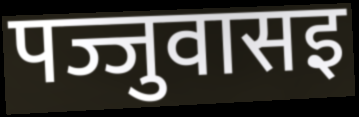
पज्जुवासइ